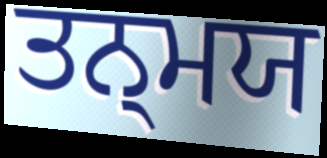
ਤਨ੍ਮਯ